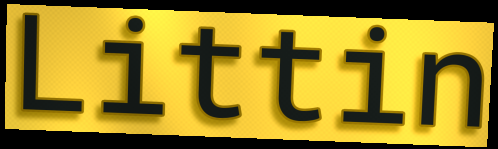
Littin